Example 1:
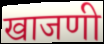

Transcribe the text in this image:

खाजणी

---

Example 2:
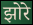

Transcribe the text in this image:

झोरे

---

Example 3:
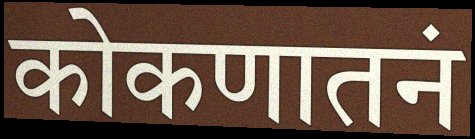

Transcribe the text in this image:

कोकणातनं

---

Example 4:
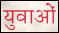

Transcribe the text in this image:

युवाओं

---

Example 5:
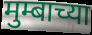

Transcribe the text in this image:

मुम्बाच्या